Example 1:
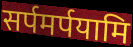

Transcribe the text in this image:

सर्पमर्पयामि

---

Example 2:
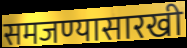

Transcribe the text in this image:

समजण्यासारखी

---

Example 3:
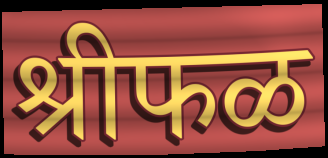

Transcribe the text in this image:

श्रीफळ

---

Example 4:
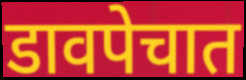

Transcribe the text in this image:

डावपेचात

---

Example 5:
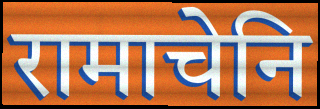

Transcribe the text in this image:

रामाचेनि